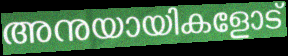
അനുയായികളോട്